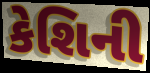
કેશિની